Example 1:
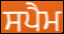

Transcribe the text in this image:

ਸਪੈਮ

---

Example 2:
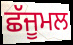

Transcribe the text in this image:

ਛੱਜੂਮਲ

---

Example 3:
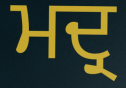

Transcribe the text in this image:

ਮਦ੍ਰ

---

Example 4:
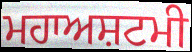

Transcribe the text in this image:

ਮਹਾਅਸ਼ਟਮੀ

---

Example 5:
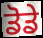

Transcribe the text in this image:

ਡੋਡੇ